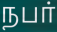
நபர்